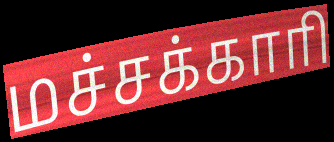
மச்சக்காரி